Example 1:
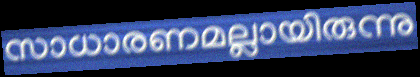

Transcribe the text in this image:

സാധാരണമല്ലായിരുന്നു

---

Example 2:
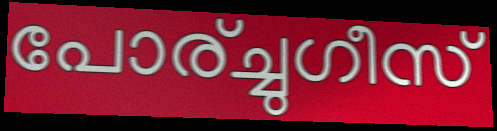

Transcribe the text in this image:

പോര്ച്ചുഗീസ്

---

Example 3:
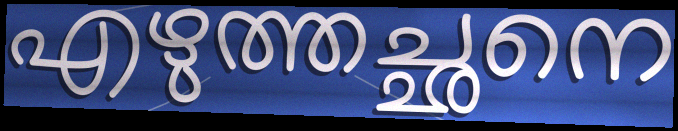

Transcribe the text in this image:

എഴുത്തച്ഛനെ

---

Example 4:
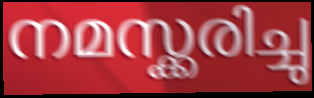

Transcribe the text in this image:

നമസ്ക്കരിച്ചു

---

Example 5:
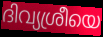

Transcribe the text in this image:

ദിവ്യശ്രീയെ